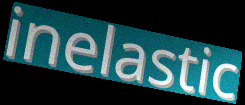
inelastic